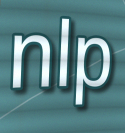
nlp